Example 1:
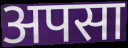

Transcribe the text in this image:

अपसा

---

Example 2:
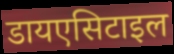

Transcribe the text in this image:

डायएसिटाइल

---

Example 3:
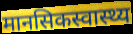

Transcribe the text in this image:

मानसिकस्वास्थ्य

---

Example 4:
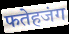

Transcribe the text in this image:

फतेहजंग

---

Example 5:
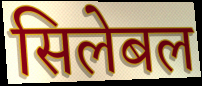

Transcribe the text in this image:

सिलेबल